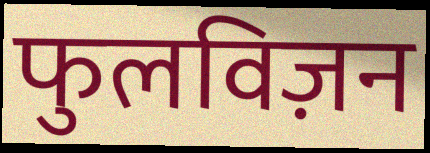
फुलविज़न